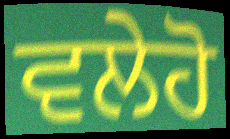
ਵਲੇਹੋ